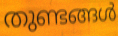
തുണ്ടങ്ങൾ